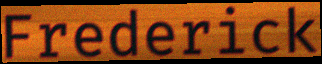
Frederick